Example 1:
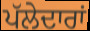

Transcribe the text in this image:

ਪੱਲੇਦਾਰਾਂ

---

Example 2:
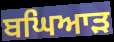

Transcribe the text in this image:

ਬਘਿਆੜ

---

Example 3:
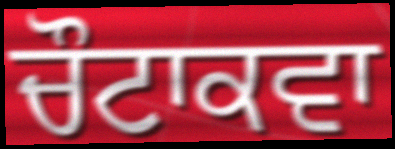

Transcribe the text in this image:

ਚੌਟਾਕਵਾ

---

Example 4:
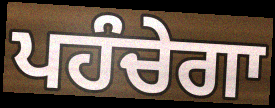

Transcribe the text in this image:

ਪਹੰਚੇਗਾ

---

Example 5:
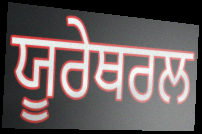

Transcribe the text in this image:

ਯੂਰੇਥਰਲ